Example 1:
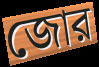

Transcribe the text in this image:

জোর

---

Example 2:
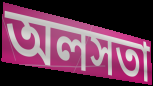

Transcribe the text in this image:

অলসতা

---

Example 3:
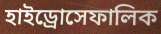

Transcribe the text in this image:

হাইড্রোসেফালিক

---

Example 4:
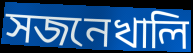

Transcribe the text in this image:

সজনেখালি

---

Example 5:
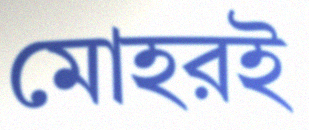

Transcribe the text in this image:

মোহরই